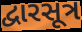
દ્વારસૂત્ર